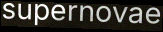
supernovae